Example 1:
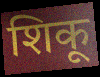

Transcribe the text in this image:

शिकू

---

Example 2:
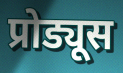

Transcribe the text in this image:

प्रोड्यूस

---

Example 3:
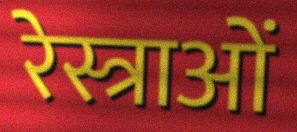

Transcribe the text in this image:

रेस्त्राओं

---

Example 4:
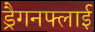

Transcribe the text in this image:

ड्रैगनफ्लाई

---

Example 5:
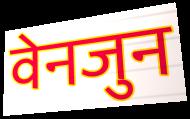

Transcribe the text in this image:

वेनजुन